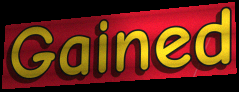
Gained